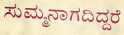
ಸುಮ್ಮನಾಗದಿದ್ದರೆ